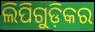
ଲିପିଗୁଡ଼ିକର